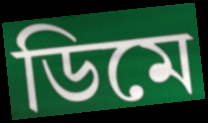
ডিমে